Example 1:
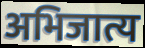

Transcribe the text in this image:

अभिजात्य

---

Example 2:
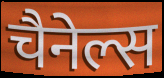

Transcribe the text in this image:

चैनेल्स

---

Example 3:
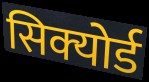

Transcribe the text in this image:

सिक्‍योर्ड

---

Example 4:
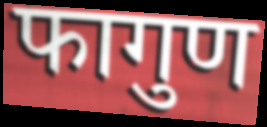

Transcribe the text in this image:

फागुण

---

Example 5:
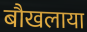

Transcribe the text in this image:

बौखलाया